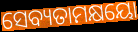
ସେବ୍ୟତାମକ୍ଷୟୋ